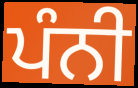
ਪੰਨੀ